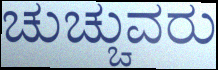
ಚುಚ್ಚುವರು